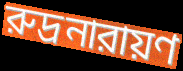
রুদ্রনারায়ণ